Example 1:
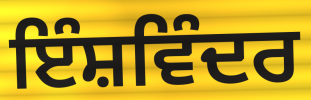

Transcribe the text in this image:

ਇੰਸ਼ਵਿੰਦਰ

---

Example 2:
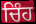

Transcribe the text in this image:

ਚਿੰਹ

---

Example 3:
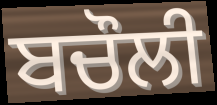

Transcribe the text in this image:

ਬਚੌਲੀ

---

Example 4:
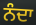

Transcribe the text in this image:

ਨੰਦਾ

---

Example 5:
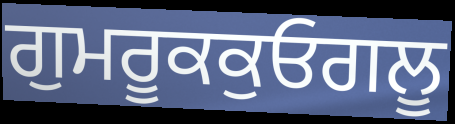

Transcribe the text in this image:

ਗੁਮਰੂਕਕੁਓਗਲੂ